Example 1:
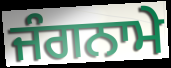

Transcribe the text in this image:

ਜੰਗਨਾਮੇ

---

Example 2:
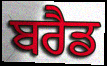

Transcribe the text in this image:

ਬਰੈਡ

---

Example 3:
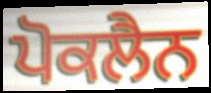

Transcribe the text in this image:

ਪੋਕਲੈਨ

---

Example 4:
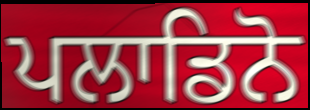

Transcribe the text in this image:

ਪਲਾਡਿਨੋ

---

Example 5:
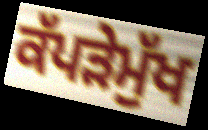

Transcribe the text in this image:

ਕੱਪੜੇਮੁੱਖ